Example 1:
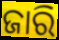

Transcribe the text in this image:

ଜାରି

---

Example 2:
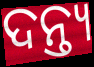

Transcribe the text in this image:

ଦନ୍ତ୍ୟ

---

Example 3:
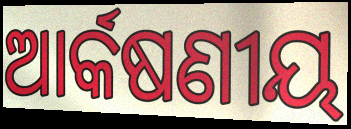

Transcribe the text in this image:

ଆର୍କଷଣୀୟ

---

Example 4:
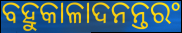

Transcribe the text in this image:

ବହୁକାଳାଦନନ୍ତରଂ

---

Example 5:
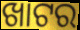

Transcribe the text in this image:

ଖାଟର